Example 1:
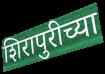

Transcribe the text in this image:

शिरापुरीच्या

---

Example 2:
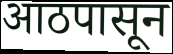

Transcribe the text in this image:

आठपासून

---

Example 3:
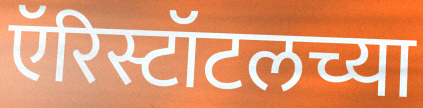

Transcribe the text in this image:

ऍरिस्टॉटलच्या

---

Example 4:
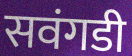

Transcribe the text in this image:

सवंगडी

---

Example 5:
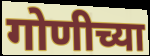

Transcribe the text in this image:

गोणीच्या